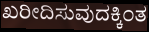
ಖರೀದಿಸುವುದಕ್ಕಿಂತ